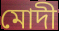
মোদী